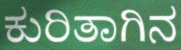
ಕುರಿತಾಗಿನ